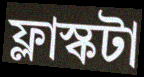
ফ্লাস্কটা